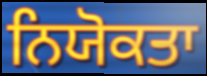
ਨਿਯੋਕਤਾ